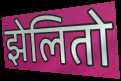
झेलितो